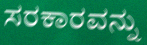
ಸರಕಾರವನ್ನು